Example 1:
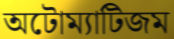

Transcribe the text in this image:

অটোম্যাটিজম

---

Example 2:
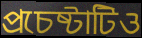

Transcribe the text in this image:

প্রচেষ্টাটিও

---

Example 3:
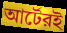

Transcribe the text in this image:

আর্টেরই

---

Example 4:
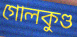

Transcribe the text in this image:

গোলকুণ্ড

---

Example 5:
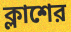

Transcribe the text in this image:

ক্লাশের